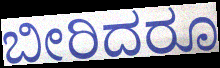
ಬೀರಿದರೂ